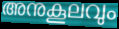
അനുകൂലവും